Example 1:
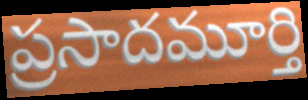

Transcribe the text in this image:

ప్రసాదమూర్తి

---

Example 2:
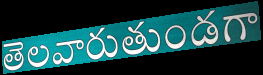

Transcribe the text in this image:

తెలవారుతుండగా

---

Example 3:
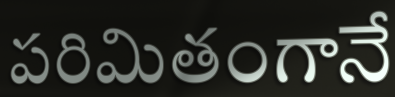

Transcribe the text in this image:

పరిమితంగానే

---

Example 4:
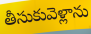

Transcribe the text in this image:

తీసుకువెళ్లాను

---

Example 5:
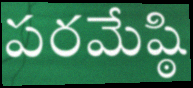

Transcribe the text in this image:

పరమేష్ఠి